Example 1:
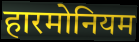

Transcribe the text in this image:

हारमोनियम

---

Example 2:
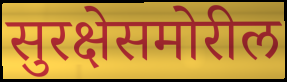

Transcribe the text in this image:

सुरक्षेसमोरील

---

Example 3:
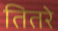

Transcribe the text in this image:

तितरे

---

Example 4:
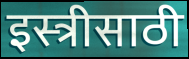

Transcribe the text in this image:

इस्त्रीसाठी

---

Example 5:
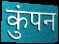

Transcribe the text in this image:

कुंपन